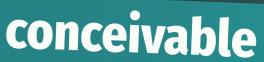
conceivable